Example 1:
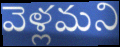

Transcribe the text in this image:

వెళ్లమని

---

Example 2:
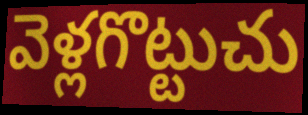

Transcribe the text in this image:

వెళ్లగొట్టుచు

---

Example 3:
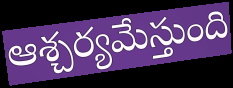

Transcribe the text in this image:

ఆశ్చర్యమేస్తుంది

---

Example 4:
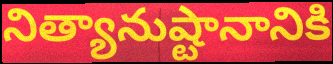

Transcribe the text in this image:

నిత్యానుష్టానానికి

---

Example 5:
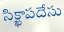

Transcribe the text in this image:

సిక్ఖాపదేసు